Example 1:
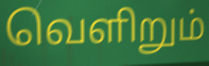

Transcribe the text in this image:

வெளிறும்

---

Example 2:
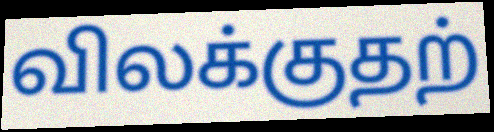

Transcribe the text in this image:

விலக்குதற்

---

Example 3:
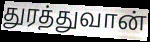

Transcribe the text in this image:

துரத்துவான்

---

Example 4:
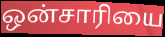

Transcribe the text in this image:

ஒன்சாரியை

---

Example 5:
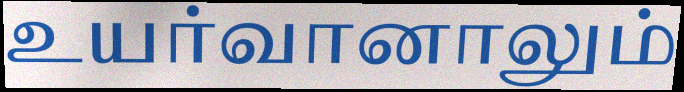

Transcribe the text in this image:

உயர்வானாலும்